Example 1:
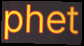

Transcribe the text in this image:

phet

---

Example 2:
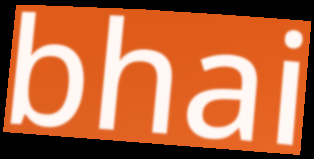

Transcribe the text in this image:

bhai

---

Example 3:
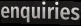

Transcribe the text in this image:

enquiries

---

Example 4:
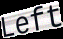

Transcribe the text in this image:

Left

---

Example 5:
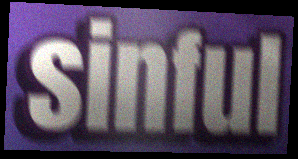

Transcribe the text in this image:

sinful